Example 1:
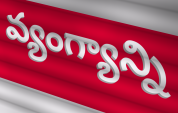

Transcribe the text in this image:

వ్యంగ్యాన్ని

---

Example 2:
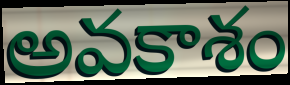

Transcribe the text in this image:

అవకాశం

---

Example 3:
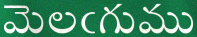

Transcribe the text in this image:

మెలఁగుము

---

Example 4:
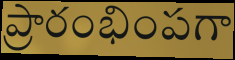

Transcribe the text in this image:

ప్రారంభింపగా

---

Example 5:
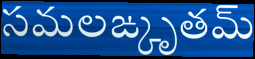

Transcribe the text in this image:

సమలఙ్కృతమ్